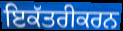
ਇਕੱਤਰੀਕਰਨ